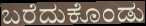
ಬರೆದುಕೊಂಡು